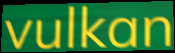
vulkan